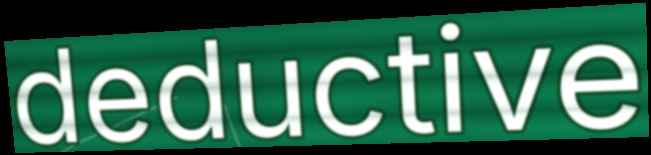
deductive